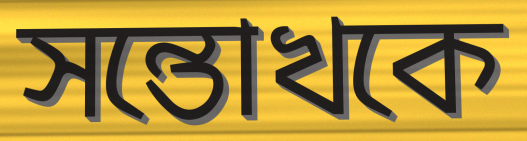
সন্তোখকে